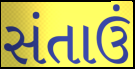
સંતાઉં